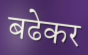
बढेकर